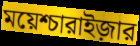
ময়েশ্চারাইজ়ার